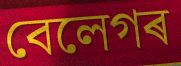
বেলেগৰ